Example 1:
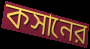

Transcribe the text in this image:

কসানের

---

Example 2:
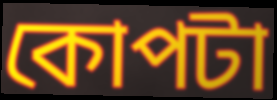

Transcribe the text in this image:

কোপটা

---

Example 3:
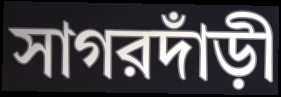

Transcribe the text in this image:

সাগরদাঁড়ী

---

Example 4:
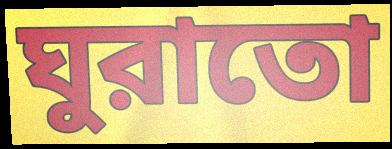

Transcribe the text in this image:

ঘুরাতো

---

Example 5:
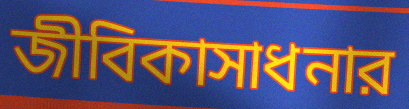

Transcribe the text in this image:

জীবিকাসাধনার